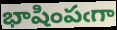
భాషింపఁగా